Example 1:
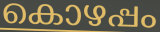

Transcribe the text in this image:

കൊഴപ്പം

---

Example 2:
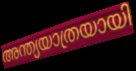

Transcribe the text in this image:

അന്ത്യയാത്രയായി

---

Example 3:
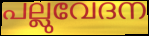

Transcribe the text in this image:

പല്ലുവേദന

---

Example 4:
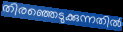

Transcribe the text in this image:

തിരഞ്ഞെടുക്കുന്നതിൽ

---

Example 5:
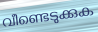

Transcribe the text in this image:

വീണ്ടെടുക്കുക